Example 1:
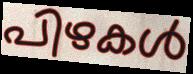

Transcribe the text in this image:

പിഴകൾ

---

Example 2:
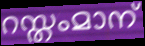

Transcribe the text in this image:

റസ്തംമാന്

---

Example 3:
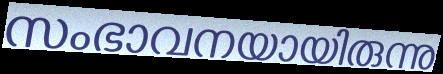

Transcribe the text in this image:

സംഭാവനയായിരുന്നു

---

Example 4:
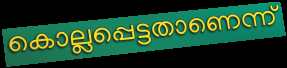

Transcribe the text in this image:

കൊല്ലപ്പെട്ടതാണെന്ന്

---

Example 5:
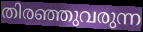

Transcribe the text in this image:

തിരഞ്ഞുവരുന്ന